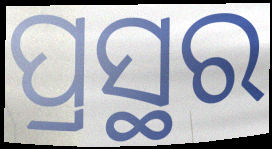
ପ୍ରସ୍ଥର